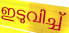
ഇടുവിച്ച്